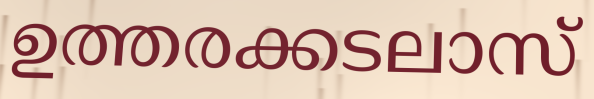
ഉത്തരക്കടലാസ്